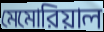
মেমোরিয়াল